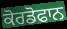
ਕੋਰਡੋਫਾਨ